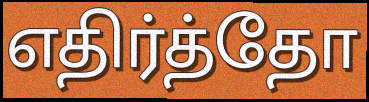
எதிர்த்தோ